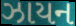
ઝાયન